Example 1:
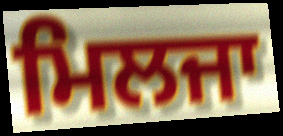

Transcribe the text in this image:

ਮਿਲਜਾ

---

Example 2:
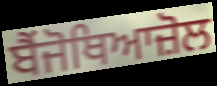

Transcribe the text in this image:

ਬੈਂਜੋਥਿਆਜ਼ੋਲ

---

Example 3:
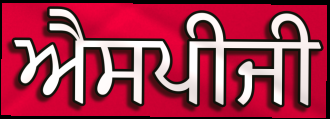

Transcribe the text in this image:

ਐਸਪੀਜੀ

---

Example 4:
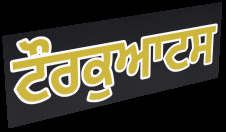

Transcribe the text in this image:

ਟੌਰਕੁਆਟਸ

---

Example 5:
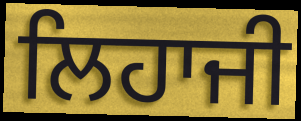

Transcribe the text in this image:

ਲਿਹਾਜੀ